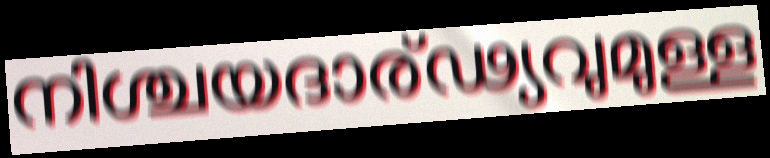
നിശ്ചയദാര്ഢ്യവുമുള്ള